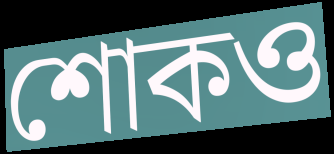
শোকও